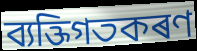
ব্যক্তিগতকৰণ